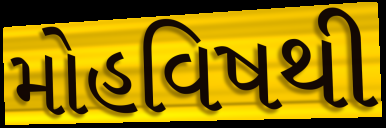
મોહવિષથી